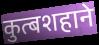
कुत्बशहाने